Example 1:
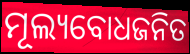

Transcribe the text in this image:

ମୂଲ୍ୟବୋଧଜନିତ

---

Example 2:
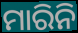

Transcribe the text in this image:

ମାରିନି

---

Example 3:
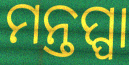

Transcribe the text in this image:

ମନ୍ତପ୍ପା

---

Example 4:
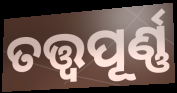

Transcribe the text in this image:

ତତ୍ତ୍ୱପୂର୍ଣ୍ଣ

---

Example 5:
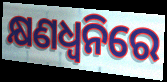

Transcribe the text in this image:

କ୍ଷଣଧ୍ୱନିରେ